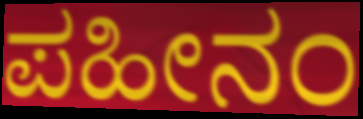
ಪಹೀನಂ